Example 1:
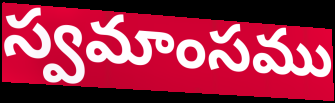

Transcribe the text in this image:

స్వమాంసము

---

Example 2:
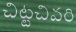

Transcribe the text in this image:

చిట్టచివరి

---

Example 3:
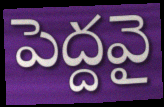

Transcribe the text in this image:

పెద్దవై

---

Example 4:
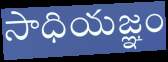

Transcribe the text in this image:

సాధియజ్ఞం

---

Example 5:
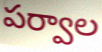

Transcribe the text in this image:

పర్వాల